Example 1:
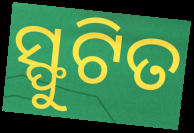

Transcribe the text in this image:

ସ୍ଫୁଟିତ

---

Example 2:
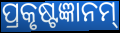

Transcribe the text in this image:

ପ୍ରକୃଷ୍ଟଜ୍ଞାନମ୍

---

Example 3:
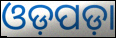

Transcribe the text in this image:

ଓଡ଼ପଡ଼ା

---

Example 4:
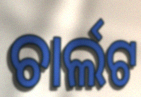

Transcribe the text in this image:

ଚାର୍ଲଟ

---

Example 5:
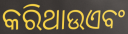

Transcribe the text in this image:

କରିଥାଉଏବଂ